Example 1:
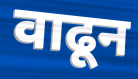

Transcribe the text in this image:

वाढून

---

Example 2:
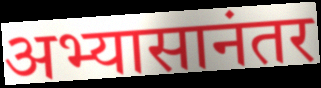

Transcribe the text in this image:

अभ्यासानंतर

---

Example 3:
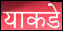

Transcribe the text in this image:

याकडे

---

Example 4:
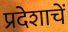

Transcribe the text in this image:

प्रदेशाचें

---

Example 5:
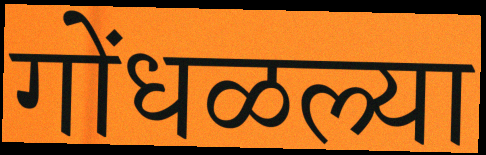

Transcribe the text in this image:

गोंधळल्या